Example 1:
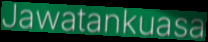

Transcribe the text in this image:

Jawatankuasa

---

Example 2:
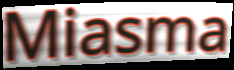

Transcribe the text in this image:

Miasma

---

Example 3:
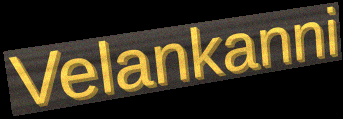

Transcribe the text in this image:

Velankanni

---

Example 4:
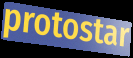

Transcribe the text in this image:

protostar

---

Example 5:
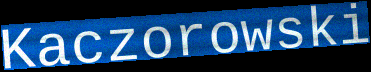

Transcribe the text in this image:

Kaczorowski